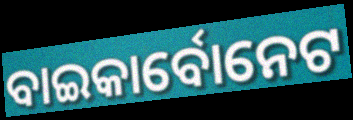
ବାଇକାର୍ବୋନେଟ